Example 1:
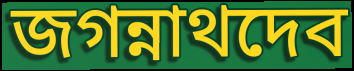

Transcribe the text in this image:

জগন্নাথদেব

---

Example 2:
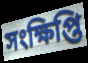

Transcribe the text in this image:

সংক্ষিপ্তি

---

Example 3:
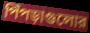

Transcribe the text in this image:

পিঁপড়াগুলোর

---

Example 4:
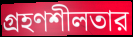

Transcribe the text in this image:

গ্রহণশীলতার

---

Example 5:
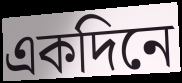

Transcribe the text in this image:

একদিনে